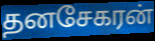
தனசேகரன்